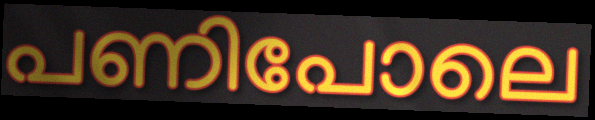
പണിപോലെ